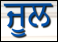
ਜੂਲ